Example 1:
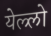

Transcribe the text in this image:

येल्लो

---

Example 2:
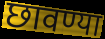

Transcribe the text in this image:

छावण्या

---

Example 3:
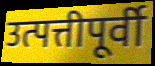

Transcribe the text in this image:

उत्पत्तीपूर्वी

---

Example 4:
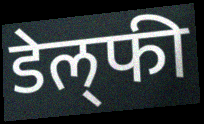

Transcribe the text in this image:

डेल्फी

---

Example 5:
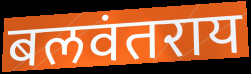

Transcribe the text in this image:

बलवंतराय